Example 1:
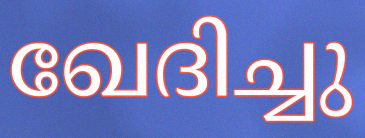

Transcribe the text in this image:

ഖേദിച്ചു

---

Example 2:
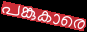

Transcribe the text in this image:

പങ്കുകാരെ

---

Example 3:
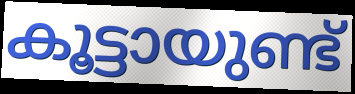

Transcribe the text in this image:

കൂട്ടായുണ്ട്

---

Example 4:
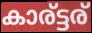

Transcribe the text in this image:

കാര്ട്ടര്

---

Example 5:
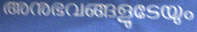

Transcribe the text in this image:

അനുഭവങ്ങളുടേയും